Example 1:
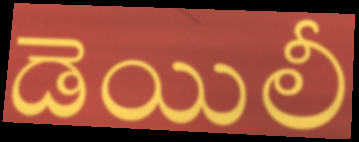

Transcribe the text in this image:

డెయిలీ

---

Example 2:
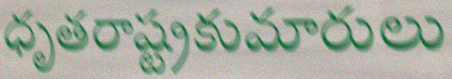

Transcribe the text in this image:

ధృతరాష్ట్రకుమారులు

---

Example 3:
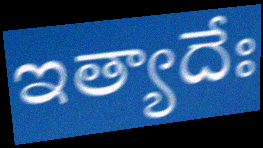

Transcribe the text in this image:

ఇత్యాదేః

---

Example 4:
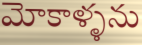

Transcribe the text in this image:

మోకాళ్ళను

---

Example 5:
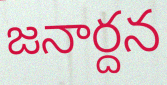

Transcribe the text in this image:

జనార్దన